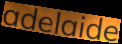
adelaide